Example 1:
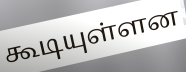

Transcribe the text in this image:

கூடியுள்ளன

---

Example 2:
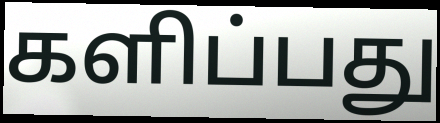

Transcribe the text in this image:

களிப்பது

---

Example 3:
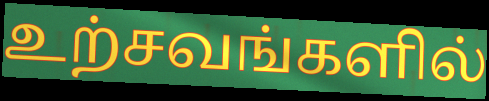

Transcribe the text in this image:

உற்சவங்களில்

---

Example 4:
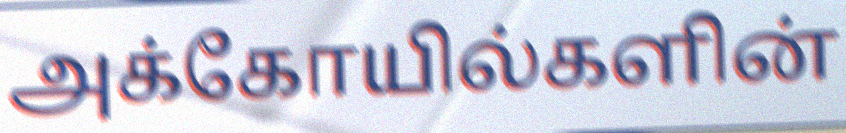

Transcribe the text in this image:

அக்கோயில்களின்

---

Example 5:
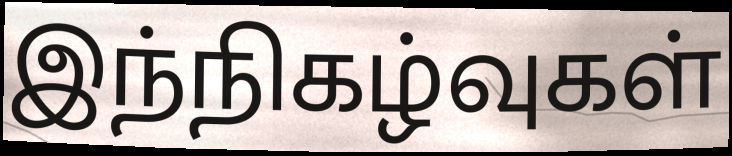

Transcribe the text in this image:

இந்நிகழ்வுகள்